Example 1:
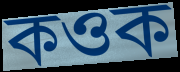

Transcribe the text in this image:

কওক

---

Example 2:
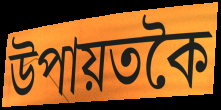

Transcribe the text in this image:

উপায়তকৈ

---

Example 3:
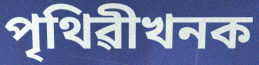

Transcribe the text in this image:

পৃথিৱীখনক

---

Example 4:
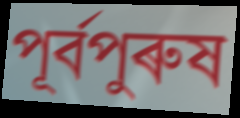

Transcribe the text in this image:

পূৰ্বপুৰুষ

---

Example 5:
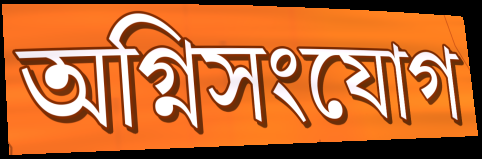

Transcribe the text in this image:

অগ্নিসংযোগ